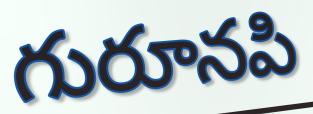
గురూనపి